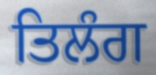
ਤਿਲੰਗ